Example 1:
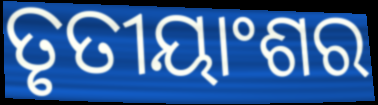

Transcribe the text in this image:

ତୃତୀୟାଂଶର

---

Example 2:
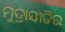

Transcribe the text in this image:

ମୁଦ୍ରାସୀତିର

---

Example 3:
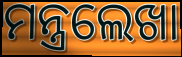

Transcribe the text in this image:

ମନ୍ତ୍ରଲେଖା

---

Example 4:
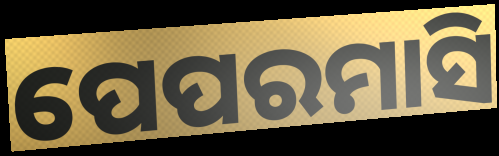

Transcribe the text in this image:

ପେପରମାସି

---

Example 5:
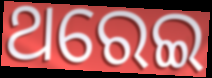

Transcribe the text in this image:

ଥରେଇ